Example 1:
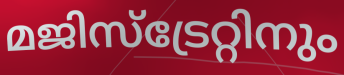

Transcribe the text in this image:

മജിസ്ട്രേറ്റിനും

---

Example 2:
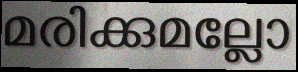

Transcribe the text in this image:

മരിക്കുമല്ലോ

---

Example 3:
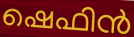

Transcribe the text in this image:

ഷെഫിൻ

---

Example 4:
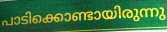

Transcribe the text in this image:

പാടിക്കൊണ്ടായിരുന്നു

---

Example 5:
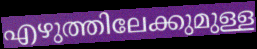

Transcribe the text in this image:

എഴുത്തിലേക്കുമുള്ള